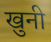
खुनी